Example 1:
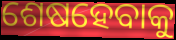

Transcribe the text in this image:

ଶେଷହେବାକୁ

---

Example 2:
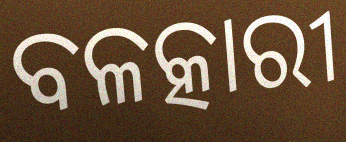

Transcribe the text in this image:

ବଳତ୍କାରୀ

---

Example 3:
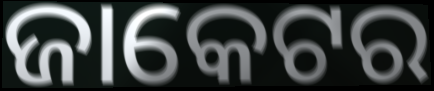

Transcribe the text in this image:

ଜାକେଟର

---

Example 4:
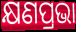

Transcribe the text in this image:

କ୍ଷଣପ୍ରଭା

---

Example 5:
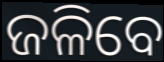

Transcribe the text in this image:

ଜଳିବେ